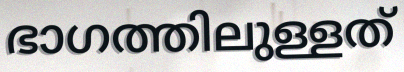
ഭാഗത്തിലുള്ളത്